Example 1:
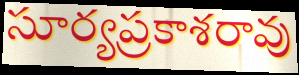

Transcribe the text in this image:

సూర్యప్రకాశరావు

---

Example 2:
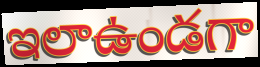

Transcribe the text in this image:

ఇలాఉండగా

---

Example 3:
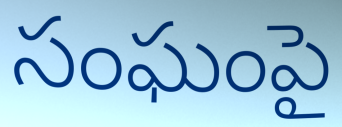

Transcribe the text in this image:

సంఘంపై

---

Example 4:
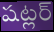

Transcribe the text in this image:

షట్లర్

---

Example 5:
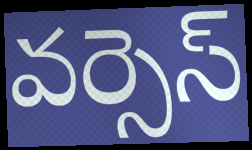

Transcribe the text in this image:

వర్సెస్